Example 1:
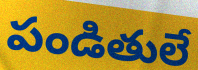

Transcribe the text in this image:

పండితులే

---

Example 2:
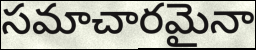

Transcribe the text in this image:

సమాచారమైనా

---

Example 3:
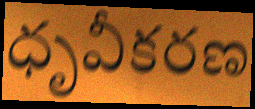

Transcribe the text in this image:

ధృవీకరణ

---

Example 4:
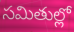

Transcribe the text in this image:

సమితుల్లో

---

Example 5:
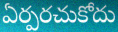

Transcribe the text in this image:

ఏర్పరచుకోదు